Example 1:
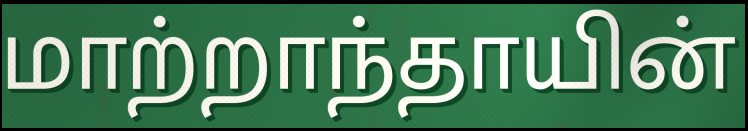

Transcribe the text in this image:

மாற்றாந்தாயின்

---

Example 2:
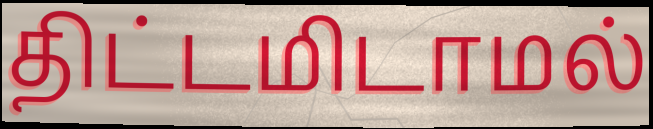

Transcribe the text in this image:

திட்டமிடாமல்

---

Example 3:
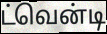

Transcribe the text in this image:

ட்வென்டி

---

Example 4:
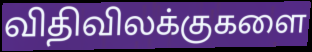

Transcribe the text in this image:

விதிவிலக்குகளை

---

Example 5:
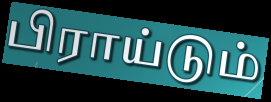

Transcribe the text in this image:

பிராய்டும்